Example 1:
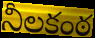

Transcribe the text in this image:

నీలకంఠ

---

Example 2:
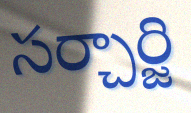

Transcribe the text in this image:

సర్చార్జి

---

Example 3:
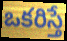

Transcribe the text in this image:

ఒకరిస్తే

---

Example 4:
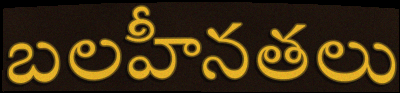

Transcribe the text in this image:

బలహీనతలు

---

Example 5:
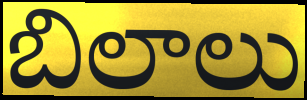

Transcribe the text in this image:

బిలాలు